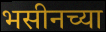
भसीनच्या